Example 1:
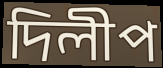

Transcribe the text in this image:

দিলীপ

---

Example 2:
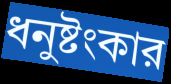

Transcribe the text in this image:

ধনুষ্টংকার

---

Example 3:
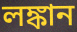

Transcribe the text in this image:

লঙ্কান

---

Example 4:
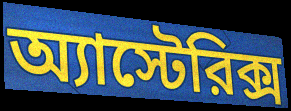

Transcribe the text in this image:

অ্যাস্টেরিক্স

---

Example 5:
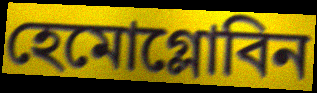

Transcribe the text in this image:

হেমোগ্লোবিন